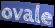
ovale